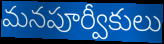
మనపూర్వీకులు